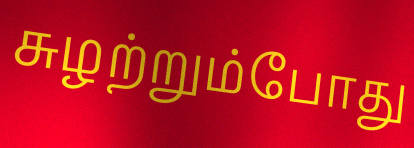
சுழற்றும்போது